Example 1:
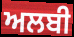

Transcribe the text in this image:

ਅਲਬੀ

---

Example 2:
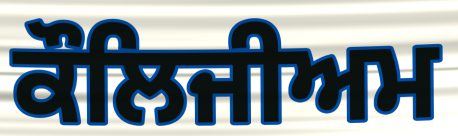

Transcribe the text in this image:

ਕੌਲਿਜੀਅਮ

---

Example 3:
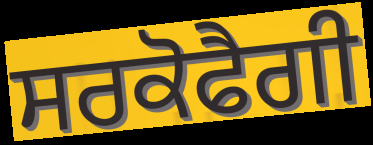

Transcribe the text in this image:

ਸਰਕੋਫੈਗੀ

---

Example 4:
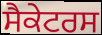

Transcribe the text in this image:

ਸੈਕੇਟਰਸ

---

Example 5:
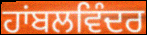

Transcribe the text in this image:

ਹਾਂਬਲਵਿੰਦਰ